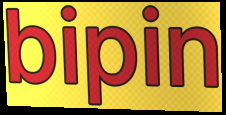
bipin